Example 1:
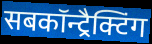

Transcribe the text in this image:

सबकॉन्ट्रैक्टिंग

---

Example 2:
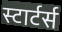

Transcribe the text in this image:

स्टार्टर्स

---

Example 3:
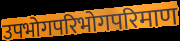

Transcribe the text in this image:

उपभोगपरिभोगपरिमाण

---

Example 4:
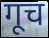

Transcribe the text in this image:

गूच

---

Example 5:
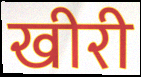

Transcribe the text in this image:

खीरी